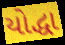
યોદ્ધા